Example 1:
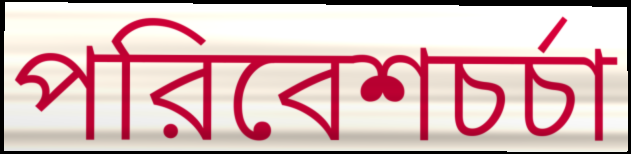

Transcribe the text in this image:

পরিবেশচর্চা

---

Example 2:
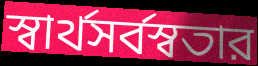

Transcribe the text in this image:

স্বার্থসর্বস্বতার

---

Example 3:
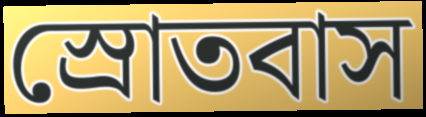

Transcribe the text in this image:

স্রোতবাস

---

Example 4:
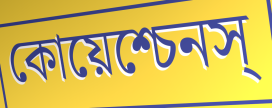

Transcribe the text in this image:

কোয়েশ্চেনস্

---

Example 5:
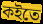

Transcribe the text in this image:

কইতে